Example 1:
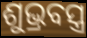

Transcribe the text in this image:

ଶୁଭ୍ରବସ୍ତ୍ର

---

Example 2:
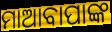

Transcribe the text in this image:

ମାଆବାପାଙ୍କ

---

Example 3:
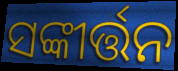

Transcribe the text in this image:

ସଙ୍କୀର୍ତ୍ତନ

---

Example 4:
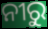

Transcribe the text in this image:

ନୀରୁ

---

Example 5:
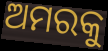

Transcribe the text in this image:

ଅମରକୁ